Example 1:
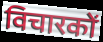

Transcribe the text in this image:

विचारकों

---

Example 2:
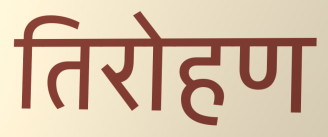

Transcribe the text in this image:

तिरोहण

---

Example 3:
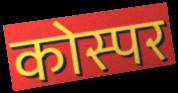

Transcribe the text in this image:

कोस्पर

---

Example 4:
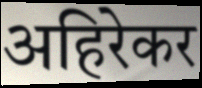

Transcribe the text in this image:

अहिरेकर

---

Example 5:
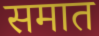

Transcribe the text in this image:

समात